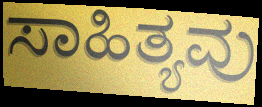
ಸಾಹಿತ್ಯವು